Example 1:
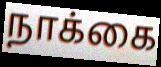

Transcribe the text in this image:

நாக்கை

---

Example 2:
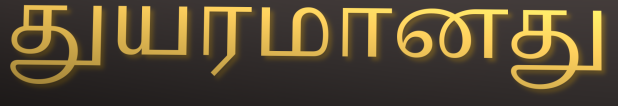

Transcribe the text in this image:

துயரமானது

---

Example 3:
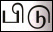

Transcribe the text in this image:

பிடு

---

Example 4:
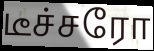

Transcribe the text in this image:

டீச்சரோ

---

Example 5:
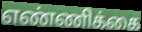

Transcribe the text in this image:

எண்ணிக்கை